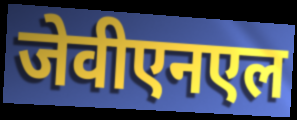
जेवीएनएल